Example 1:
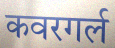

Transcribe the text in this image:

कवरगर्ल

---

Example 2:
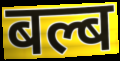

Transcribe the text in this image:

बल्ब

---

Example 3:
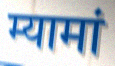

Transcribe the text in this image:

म्यामां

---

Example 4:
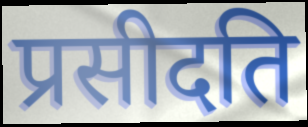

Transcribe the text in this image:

प्रसीदति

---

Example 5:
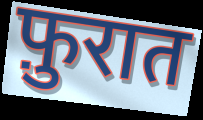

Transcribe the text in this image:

फ़ुरात